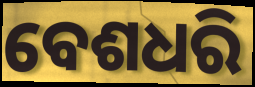
ବେଶଧରି